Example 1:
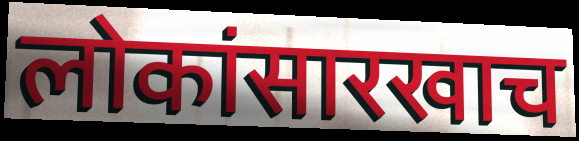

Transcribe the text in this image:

लोकांसारखाच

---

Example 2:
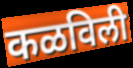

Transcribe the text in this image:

कळविली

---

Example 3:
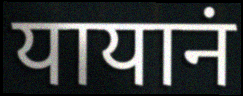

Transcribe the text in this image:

यायानं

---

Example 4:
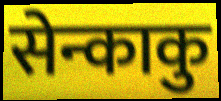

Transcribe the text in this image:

सेन्काकु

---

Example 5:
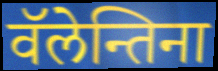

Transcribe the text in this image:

वॅलेन्तिना